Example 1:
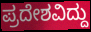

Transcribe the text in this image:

ಪ್ರದೇಶವಿದ್ದು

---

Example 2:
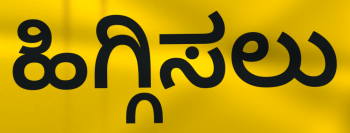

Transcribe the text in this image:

ಹಿಗ್ಗಿಸಲು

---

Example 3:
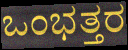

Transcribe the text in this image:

ಒಂಭತ್ತರ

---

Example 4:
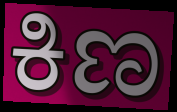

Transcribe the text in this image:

ಕಿಣ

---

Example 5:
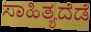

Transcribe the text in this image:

ಸಾಹಿತ್ಯದೆಡೆ